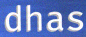
dhas